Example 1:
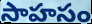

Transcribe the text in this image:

సాహసం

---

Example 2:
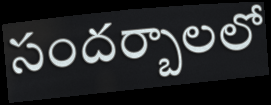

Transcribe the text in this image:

సందర్బాలలో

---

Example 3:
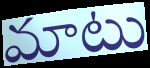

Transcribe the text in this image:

మాటు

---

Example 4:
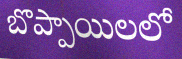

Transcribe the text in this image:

బొప్పాయిలలో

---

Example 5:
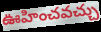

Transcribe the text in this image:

ఊహించవచ్చు